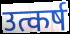
उत्कर्ष